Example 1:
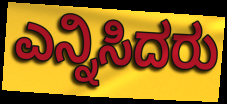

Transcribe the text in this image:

ಎನ್ನಿಸಿದರು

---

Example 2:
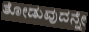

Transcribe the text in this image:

ತೋಡುವುದನ್ನೇ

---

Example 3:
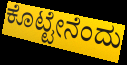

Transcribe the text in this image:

ಕೊಟ್ಟೇನೆಂದು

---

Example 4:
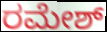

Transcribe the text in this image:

ರಮೇಶ್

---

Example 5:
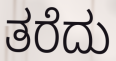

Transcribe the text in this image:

ತರೆದು